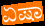
ಏಷಾ